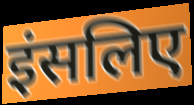
इंसलिए